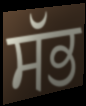
ਸੱਭ